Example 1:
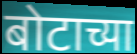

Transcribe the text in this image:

बोटाच्या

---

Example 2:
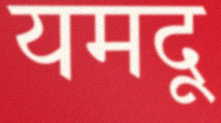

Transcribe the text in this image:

यमदू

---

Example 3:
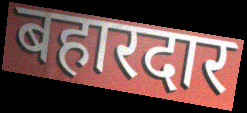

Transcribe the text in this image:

बहारदार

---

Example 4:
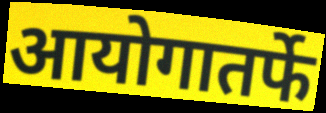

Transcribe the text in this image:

आयोगातर्फे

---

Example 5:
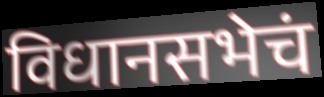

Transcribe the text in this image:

विधानसभेचं